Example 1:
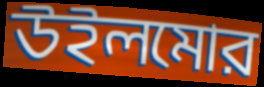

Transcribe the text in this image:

উইলমোর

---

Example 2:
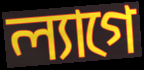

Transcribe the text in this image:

ল্যাগে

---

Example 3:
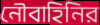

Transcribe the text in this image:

নৌবাহিনির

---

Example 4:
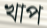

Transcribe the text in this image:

খাপ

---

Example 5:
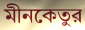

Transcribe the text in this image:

মীনকেতুর